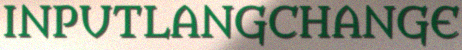
INPUTLANGCHANGE